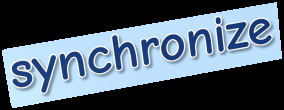
synchronize